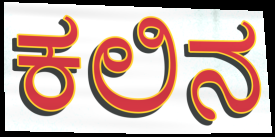
ಕಲಿನ